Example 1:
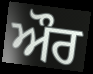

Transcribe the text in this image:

ਔਰ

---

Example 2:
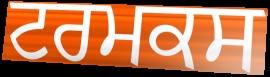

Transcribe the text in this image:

ਟਰਮਕਸ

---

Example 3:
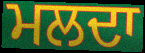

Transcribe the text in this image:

ਮਲਦਾ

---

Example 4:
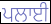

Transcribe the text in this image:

ਪਲਾਈ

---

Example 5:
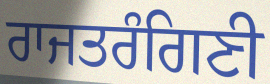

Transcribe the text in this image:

ਰਾਜਤਰੰਗਿਣੀ